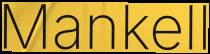
Mankell